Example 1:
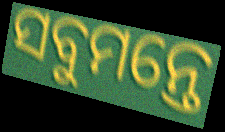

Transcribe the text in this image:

ସବୁମନ୍ତେ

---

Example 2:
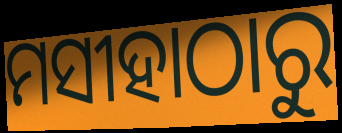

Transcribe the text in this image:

ମସୀହାଠାରୁ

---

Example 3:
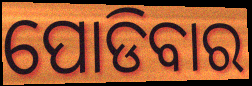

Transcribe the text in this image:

ପୋଡିବାର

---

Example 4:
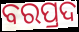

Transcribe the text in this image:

ବରପ୍ରଦ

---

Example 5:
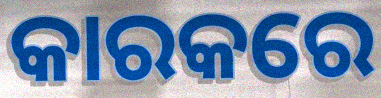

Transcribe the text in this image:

କାରକରେ